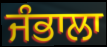
ਜੰਭਾਲਾ